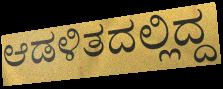
ಆಡಳಿತದಲ್ಲಿದ್ದ